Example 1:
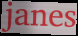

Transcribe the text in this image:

janes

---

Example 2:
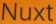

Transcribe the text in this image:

Nuxt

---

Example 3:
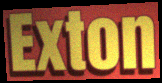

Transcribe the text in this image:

Exton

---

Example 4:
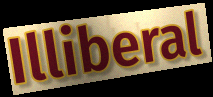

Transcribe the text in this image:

Illiberal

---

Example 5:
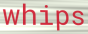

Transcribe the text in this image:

whips